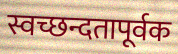
स्वच्छन्दतापूर्वक